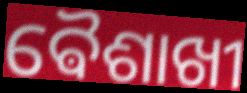
ଵୈଶାଖୀ